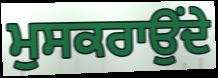
ਮੁਸਕਰਾਉਂਦੇ